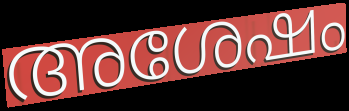
അശേഷം